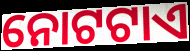
ନୋଟଟାଏ